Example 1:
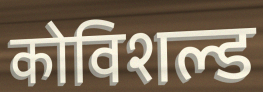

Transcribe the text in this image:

कोविशल्ड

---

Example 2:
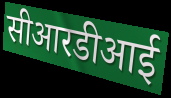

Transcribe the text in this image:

सीआरडीआई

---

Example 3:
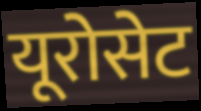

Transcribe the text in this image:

यूरोसेट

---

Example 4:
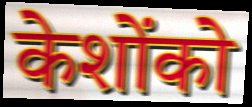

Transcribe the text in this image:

केशोंको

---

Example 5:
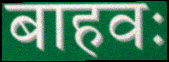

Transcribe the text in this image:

बाहवः